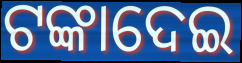
ଟଙ୍କାଦେଇ